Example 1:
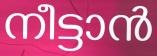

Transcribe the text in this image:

നീട്ടാൻ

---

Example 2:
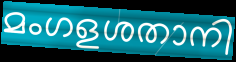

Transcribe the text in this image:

മംഗളശതാനി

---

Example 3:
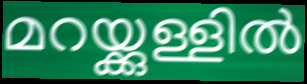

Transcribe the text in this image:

മറയ്ക്കുള്ളിൽ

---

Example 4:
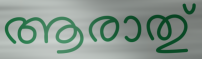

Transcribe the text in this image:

ആരാതു്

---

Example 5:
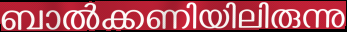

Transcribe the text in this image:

ബാൽക്കണിയിലിരുന്നു